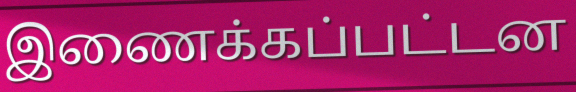
இணைக்கப்பட்டன